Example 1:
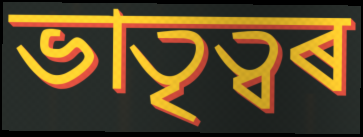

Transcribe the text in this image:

ভাতৃত্বৰ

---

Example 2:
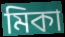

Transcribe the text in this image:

মিকা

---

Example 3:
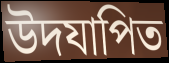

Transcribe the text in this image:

উদযাপিত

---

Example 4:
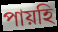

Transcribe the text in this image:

পায়হি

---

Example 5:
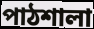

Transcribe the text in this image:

পাঠশালা